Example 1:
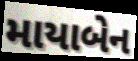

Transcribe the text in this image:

માયાબેન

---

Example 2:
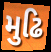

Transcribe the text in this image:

મુઢિ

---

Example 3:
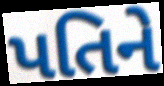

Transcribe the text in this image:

પતિને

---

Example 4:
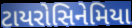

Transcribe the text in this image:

ટાયરોસિનેમિયા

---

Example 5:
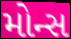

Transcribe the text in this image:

મોન્સ